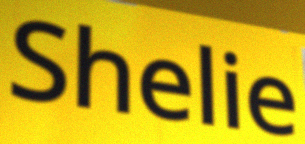
Shelie